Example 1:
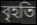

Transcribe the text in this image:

বৃহতি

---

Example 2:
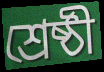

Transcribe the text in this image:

শ্রেষ্ঠী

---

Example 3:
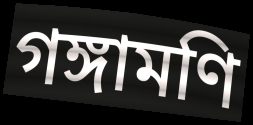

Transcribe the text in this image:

গঙ্গামণি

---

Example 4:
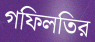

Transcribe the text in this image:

গফিলতির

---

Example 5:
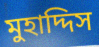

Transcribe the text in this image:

মুহাদ্দিস